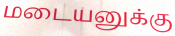
மடையனுக்கு